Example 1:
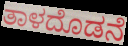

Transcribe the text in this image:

ತಾಳದೊಡನೆ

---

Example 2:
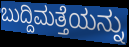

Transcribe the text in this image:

ಬುದ್ದಿಮತ್ತೆಯನ್ನು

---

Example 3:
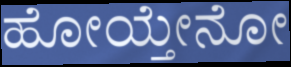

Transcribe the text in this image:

ಹೋಯ್ತೇನೋ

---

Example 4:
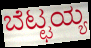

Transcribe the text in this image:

ಬೆಟ್ಟಯ್ಯ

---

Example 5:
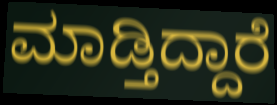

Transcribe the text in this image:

ಮಾಡ್ತಿದ್ದಾರೆ